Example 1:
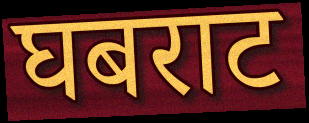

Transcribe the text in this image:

घबराट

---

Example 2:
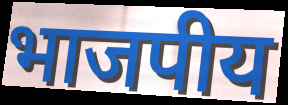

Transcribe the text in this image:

भाजपीय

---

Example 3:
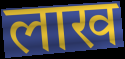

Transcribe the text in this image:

लाख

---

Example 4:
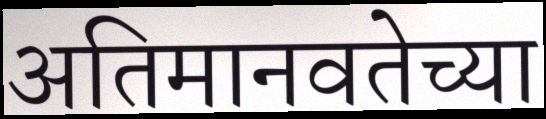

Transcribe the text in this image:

अतिमानवतेच्या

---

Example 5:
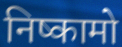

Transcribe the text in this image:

निष्कामो